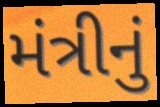
મંત્રીનું